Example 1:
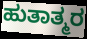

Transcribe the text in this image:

ಹುತಾತ್ಮರ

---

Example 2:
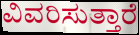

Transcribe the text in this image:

ವಿವರಿಸುತ್ತಾರೆ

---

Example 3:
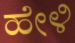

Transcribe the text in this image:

ಹೇಳಿ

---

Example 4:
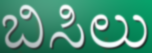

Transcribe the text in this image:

ಬಿಸಿಲು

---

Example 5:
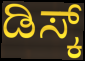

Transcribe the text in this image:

ಡಿಸ್ಕ್